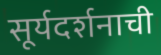
सूर्यदर्शनाची